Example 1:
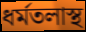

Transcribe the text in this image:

ধর্মতলাস্থ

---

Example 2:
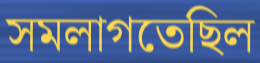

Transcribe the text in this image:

সমলাগতেছিল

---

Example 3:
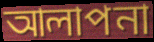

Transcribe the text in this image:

আলাপনা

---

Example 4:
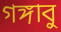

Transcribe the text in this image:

গঙ্গাবু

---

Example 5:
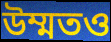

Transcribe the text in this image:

উম্মতও